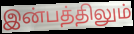
இன்பத்திலும்